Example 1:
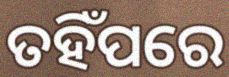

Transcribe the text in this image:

ତହିଁପରେ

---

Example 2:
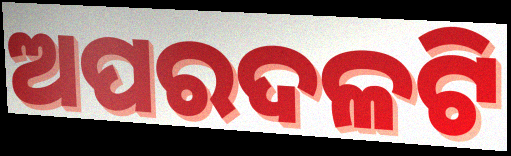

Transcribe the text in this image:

ଅପରଦଳଟି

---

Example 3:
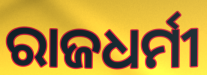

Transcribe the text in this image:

ରାଜଧର୍ମୀ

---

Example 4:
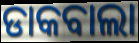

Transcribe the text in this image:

ଡାକବାଲା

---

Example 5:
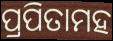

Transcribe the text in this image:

ପ୍ରପିତାମହ